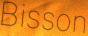
Bisson